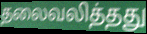
தலைவலித்தது